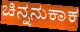
ಚಿನ್ನನುಕಾಕ